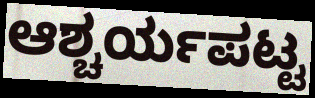
ಆಶ್ಚರ್ಯಪಟ್ಟ